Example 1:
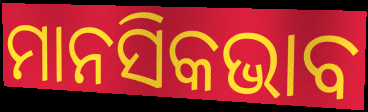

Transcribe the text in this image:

ମାନସିକଭାବ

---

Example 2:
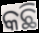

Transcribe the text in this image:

କଛି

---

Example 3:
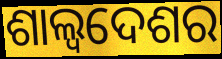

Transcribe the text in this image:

ଶାଲ୍ୱଦେଶର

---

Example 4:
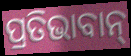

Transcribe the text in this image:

ପ୍ରତିଭାବାନ୍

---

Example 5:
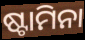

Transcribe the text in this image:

ଷ୍ଟାମିନା